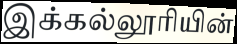
இக்கல்லூரியின்